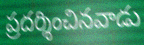
ప్రదర్శించినవాడు